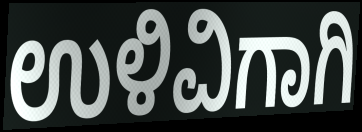
ಉಳಿವಿಗಾಗಿ